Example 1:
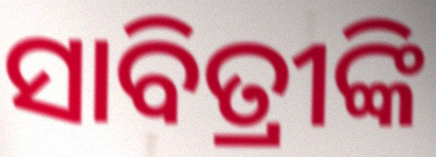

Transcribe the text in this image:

ସାବିତ୍ରୀଙ୍କି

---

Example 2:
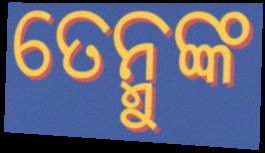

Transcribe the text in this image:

ତେନ୍ମୁଙ୍କ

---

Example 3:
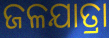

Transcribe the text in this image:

ଜଳଯାତ୍ରା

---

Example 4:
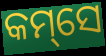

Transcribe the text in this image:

କମ୍‌ସେ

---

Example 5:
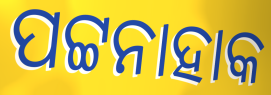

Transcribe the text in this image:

ପଟ୍ଟନାହାକ